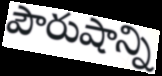
పౌరుషాన్ని